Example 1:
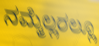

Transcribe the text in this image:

ನಮ್ಮೆಲ್ಲರಲ್ಲೂ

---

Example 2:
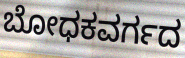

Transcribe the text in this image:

ಬೋಧಕವರ್ಗದ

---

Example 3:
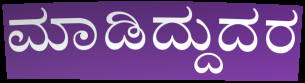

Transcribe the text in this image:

ಮಾಡಿದ್ದುದರ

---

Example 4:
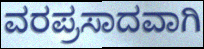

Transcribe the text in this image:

ವರಪ್ರಸಾದವಾಗಿ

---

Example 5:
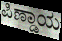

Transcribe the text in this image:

ಪಿಣ್ಡಾಯ